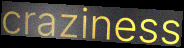
craziness